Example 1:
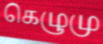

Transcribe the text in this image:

கெழுமு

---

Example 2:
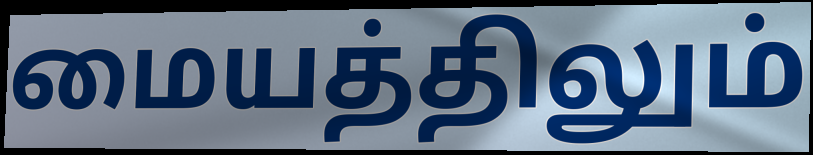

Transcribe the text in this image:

மையத்திலும்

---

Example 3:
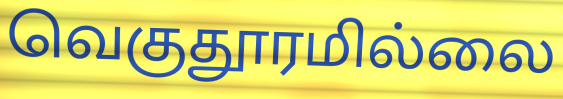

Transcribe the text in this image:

வெகுதூரமில்லை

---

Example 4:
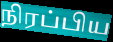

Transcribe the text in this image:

நிரப்பிய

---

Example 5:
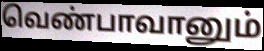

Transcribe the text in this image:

வெண்பாவானும்